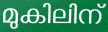
മുകിലിന്